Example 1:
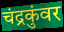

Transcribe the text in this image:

चंद्रकुंवर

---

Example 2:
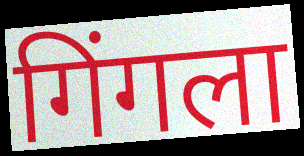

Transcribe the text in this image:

गिंगला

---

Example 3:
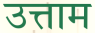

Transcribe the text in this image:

उत्ताम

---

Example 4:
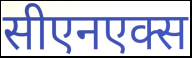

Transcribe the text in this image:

सीएनएक्स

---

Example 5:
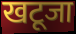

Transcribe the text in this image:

खटूजा